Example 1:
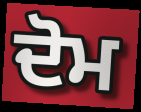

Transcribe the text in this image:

ਦੋਮ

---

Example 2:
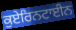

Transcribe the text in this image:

ਕੁਏਰਿਨਟਾਈਨ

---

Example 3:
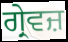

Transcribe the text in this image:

ਗ੍ਰੇਵਜ਼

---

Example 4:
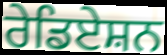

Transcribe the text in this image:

ਰੇਡਿਏਸ਼ਨ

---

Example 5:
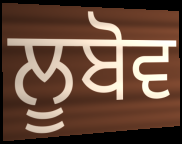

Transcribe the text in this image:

ਲੂਬੋਵ